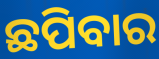
ଛପିବାର